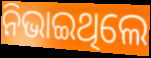
ନିଭାଇଥିଲେ